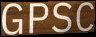
GPSC